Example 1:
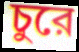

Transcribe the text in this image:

চুরে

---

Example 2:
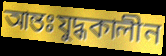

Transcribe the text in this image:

আন্তঃযুদ্ধকালীন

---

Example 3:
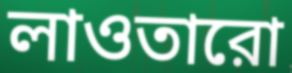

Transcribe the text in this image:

লাওতারো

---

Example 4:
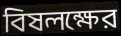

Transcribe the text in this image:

বিষলক্ষের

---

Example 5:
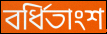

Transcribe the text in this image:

বর্ধিতাংশ